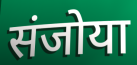
संजोया